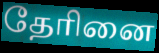
தேரினை